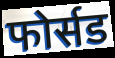
फोर्सड